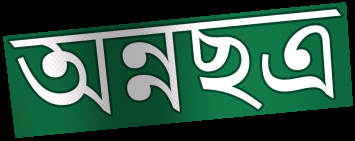
অন্নছত্র